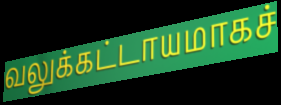
வலுக்கட்டாயமாகச்